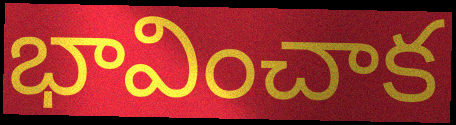
భావించాక